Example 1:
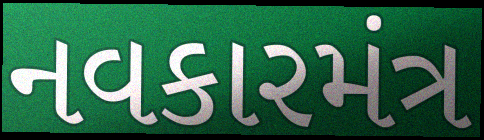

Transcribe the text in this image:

નવકારમંત્ર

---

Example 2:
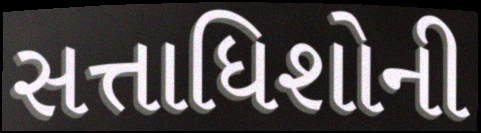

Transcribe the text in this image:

સત્તાધિશોની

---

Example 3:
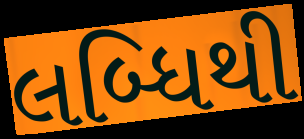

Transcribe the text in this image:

લબ્ધિથી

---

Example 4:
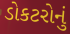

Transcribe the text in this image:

ડોકટરોનું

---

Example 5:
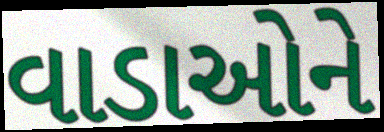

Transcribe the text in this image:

વાડાઓને